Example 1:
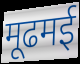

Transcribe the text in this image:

मूढमई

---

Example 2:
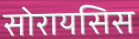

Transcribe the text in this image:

सोरायसिस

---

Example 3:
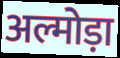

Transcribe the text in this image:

अल्मोड़ा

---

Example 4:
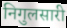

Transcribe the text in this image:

निगुलसारी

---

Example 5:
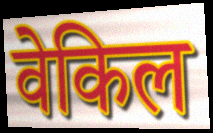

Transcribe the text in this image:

वेकिल